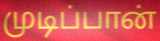
முடிப்பான்